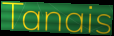
Tanais